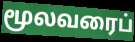
மூலவரைப்